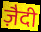
ज़ैदी